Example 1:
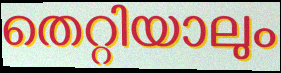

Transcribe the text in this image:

തെറ്റിയാലും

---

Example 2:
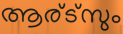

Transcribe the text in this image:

ആര്ട്സും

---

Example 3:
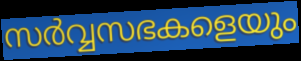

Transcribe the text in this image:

സർവ്വസഭകളെയും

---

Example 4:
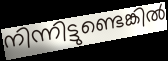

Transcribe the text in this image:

നിന്നിട്ടുണ്ടെങ്കിൽ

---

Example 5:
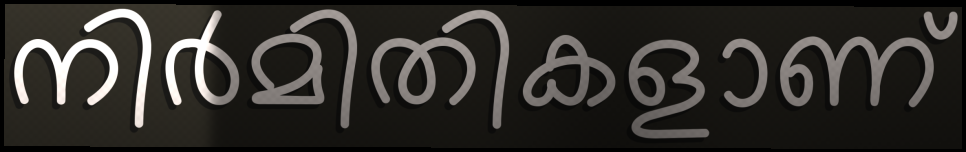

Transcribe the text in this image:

നിർമിതികളാണ്